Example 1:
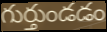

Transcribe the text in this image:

గుర్తుండడం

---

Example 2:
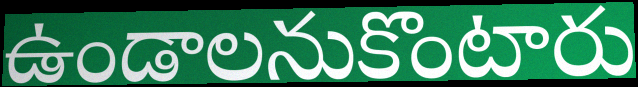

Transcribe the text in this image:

ఉండాలనుకొంటారు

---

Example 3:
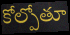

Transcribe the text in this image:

కోల్పోతూ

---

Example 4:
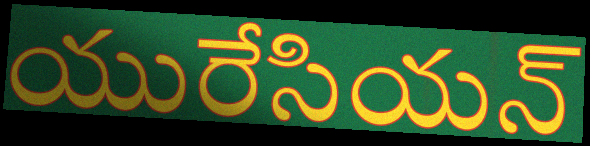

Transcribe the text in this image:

యురేసియన్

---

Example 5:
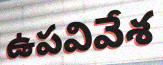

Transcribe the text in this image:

ఉపవివేశ